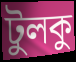
টুলকু